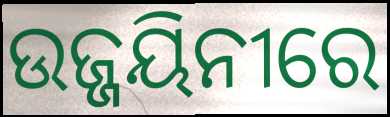
ଉଜ୍ଜୟିନୀରେ